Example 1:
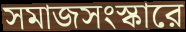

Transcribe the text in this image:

সমাজসংস্কারে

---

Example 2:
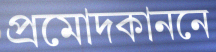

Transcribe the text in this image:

প্রমোদকাননে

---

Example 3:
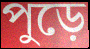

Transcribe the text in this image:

পুড়ে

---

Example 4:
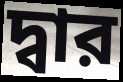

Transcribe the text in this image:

দ্বার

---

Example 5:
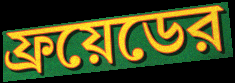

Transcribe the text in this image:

ফ্রয়েডের